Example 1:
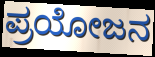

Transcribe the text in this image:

ಪ್ರಯೋಜನ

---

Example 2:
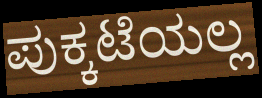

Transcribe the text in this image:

ಪುಕ್ಕಟೆಯಲ್ಲ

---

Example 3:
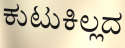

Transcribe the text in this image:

ಕುಟುಕಿಲ್ಲದ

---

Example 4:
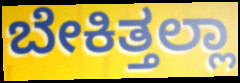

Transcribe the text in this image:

ಬೇಕಿತ್ತಲ್ಲಾ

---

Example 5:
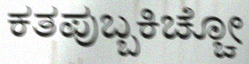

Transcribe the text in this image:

ಕತಪುಬ್ಬಕಿಚ್ಚೋ